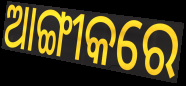
ଆଙ୍ଗୀକରେ